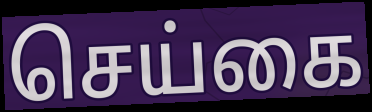
செய்கை